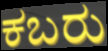
ಕಬರು